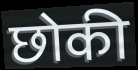
छोकी